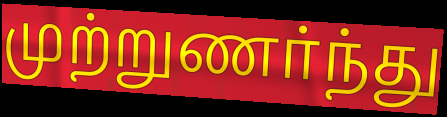
முற்றுணர்ந்து